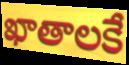
ఖాతాలకే